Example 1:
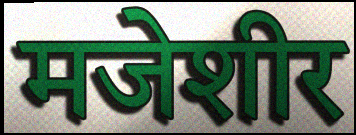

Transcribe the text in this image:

मजेशीर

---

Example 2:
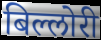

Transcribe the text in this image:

बिल्लोरी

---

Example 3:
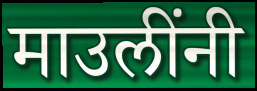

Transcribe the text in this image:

माउलींनी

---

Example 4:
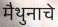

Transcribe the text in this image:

मैथुनाचे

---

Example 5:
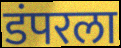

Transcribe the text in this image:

डंपरला